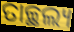
ତାଚ୍ଛଲ୍ଯ